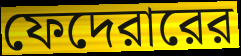
ফেদেরারের